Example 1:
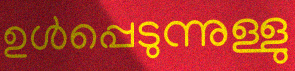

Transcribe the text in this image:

ഉൾപ്പെടുന്നുള്ളു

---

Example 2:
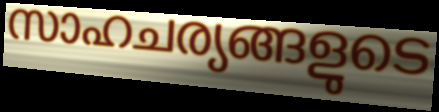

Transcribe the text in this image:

സാഹചര്യങ്ങളുടെ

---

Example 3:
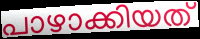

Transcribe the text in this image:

പാഴാക്കിയത്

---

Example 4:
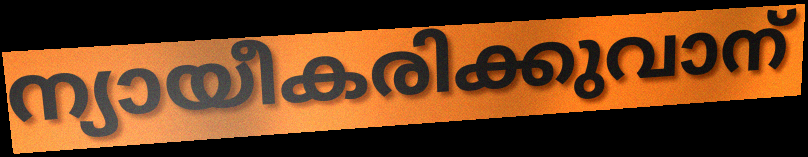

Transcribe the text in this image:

ന്യായീകരിക്കുവാന്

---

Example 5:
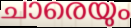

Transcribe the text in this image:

ചാരെയും